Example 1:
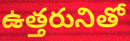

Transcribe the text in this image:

ఉత్తరునితో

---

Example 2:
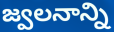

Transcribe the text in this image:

జ్వలనాన్ని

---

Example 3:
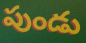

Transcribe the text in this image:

పుండు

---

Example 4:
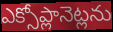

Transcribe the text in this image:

ఎక్సోప్లానెట్లను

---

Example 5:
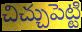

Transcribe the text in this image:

చిచ్చుపెట్టి